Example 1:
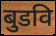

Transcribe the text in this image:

बुडवि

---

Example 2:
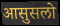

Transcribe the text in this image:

आसुसलो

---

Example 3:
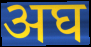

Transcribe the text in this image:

अघ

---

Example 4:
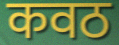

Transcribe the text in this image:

कवठ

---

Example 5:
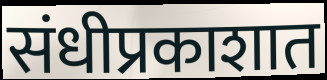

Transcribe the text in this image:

संधीप्रकाशात